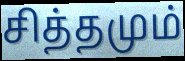
சித்தமும்